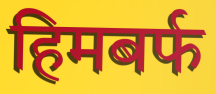
हिमबर्फ